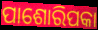
ପାଶୋରିପକା